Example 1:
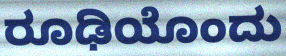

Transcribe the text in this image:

ರೂಢಿಯೊಂದು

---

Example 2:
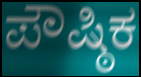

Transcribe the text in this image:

ಪೌಷ್ಠಿಕ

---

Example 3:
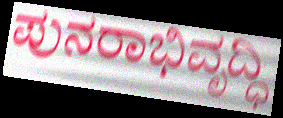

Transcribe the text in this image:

ಪುನರಾಭಿವೃದ್ಧಿ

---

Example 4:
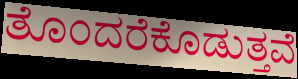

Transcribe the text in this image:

ತೊಂದರೆಕೊಡುತ್ತವೆ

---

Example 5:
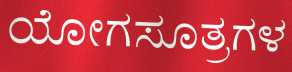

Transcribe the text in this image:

ಯೋಗಸೂತ್ರಗಳ